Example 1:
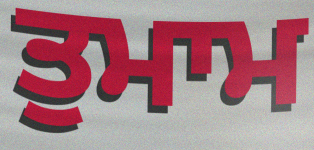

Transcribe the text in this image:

ਤੁਮਾਮ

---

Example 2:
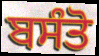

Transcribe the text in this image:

ਬਸੰਤੋ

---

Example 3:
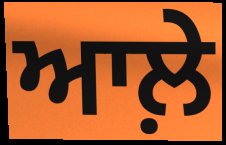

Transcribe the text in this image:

ਆਲ਼ੇ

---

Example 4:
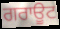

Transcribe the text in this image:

ਗਰਾਊਟ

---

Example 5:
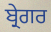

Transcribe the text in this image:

ਬ੍ਰੇਗਰ